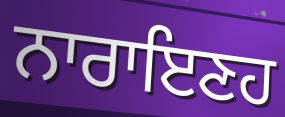
ਨਾਰਾਇਣਹ